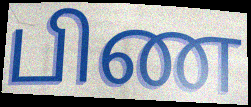
பிண